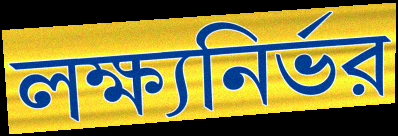
লক্ষ্যনির্ভর